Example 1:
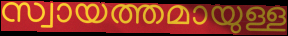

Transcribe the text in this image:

സ്വായത്തമായുള്ള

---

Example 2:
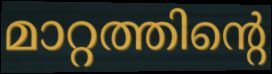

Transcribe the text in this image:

മാറ്റത്തിന്റെ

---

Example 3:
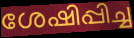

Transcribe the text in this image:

ശേഷിപ്പിച്ച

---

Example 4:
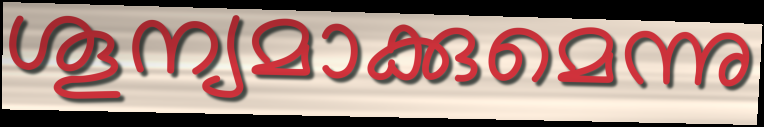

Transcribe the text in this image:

ശൂന്യമാക്കുമെന്നു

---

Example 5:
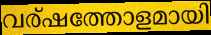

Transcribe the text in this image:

വര്ഷത്തോളമായി